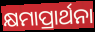
କ୍ଷମାପ୍ରାର୍ଥନା